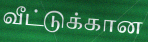
வீட்டுக்கான